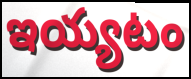
ఇయ్యటం